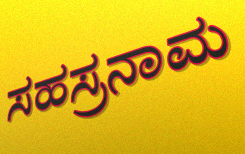
ಸಹಸ್ರನಾಮ